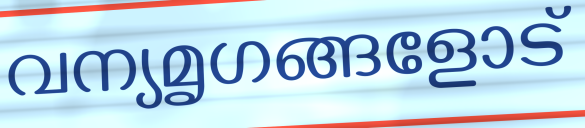
വന്യമൃഗങ്ങളോട്